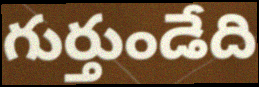
గుర్తుండేది